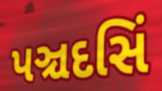
પઞ્ચદસિં